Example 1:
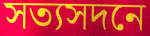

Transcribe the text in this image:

সত্যসদনে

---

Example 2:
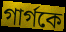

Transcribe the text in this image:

গার্গকে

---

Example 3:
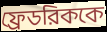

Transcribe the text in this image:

ফ্রেডরিককে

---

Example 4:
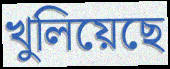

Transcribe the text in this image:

খুলিয়েছে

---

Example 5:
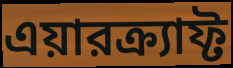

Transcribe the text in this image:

এয়ারক্র্যাফ্ট